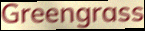
Greengrass